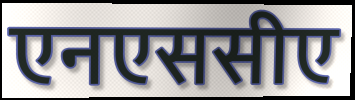
एनएससीए